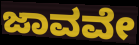
ಜಾವವೇ